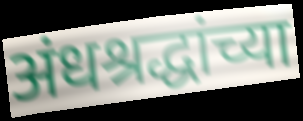
अंधश्रद्धांच्या